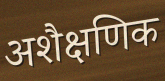
अशैक्षणिक